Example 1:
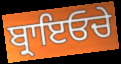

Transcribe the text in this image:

ਬ੍ਰਾਇਓਚੇ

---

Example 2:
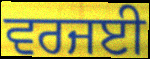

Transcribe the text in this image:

ਵਰਜਈ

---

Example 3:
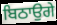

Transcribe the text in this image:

ਬਿਠਾਉਗੇ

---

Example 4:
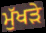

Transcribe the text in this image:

ਮੁੱਖੜੇ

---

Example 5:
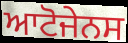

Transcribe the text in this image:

ਆਟੋਜੇਨਸ